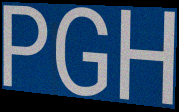
PGH